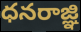
ధనరాజ్ఞి